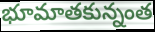
భూమాతకున్నంత